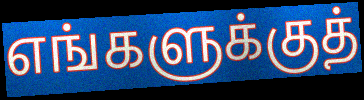
எங்களுக்குத்